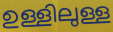
ഉള്ളിലുള്ള